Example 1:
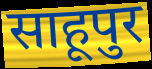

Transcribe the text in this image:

साहूपुर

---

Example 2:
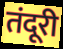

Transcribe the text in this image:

तंदूरी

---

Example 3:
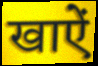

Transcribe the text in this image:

खाऐं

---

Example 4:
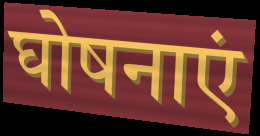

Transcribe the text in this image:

घोषनाएं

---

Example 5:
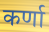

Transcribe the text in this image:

कर्णा